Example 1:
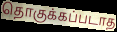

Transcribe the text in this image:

தொகுக்கப்படாத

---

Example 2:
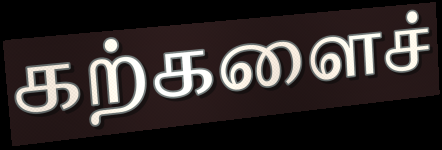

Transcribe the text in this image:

கற்களைச்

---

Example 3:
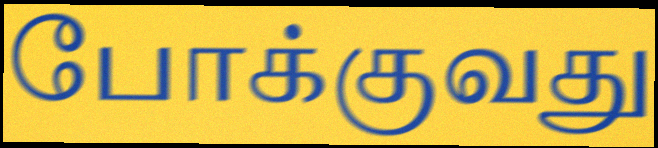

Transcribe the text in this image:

போக்குவது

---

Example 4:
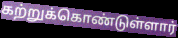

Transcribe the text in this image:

கற்றுக்கொண்டுள்ளார்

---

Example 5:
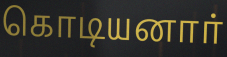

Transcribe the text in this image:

கொடியனார்